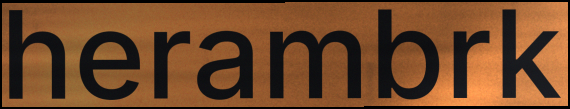
herambrk